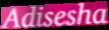
Adisesha